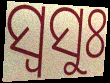
ସ୍ଵସୁଃ